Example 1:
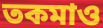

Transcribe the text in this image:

তকমাও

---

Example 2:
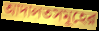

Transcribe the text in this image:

আদালতসমূহের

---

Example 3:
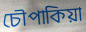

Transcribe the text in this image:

চৌপাকিয়া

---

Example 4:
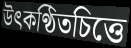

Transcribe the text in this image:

উৎকণ্ঠিতচিত্তে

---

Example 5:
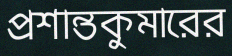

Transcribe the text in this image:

প্রশান্তকুমারের